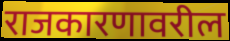
राजकारणावरील